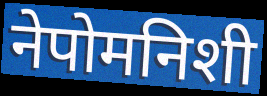
नेपोमनिशी